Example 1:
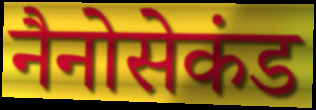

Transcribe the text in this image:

नैनोसेकंड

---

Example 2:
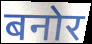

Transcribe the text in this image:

बनोर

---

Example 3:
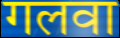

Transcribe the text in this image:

गलवा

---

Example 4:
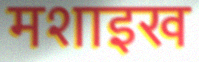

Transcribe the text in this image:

मशाइख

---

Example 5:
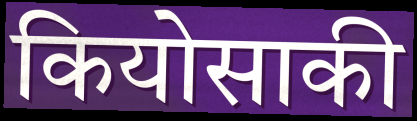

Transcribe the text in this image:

कियोसाकी